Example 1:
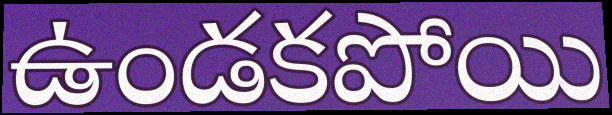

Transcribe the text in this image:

ఉండకపోయి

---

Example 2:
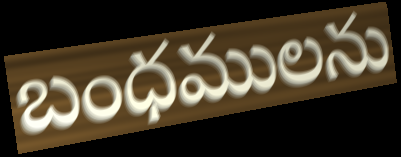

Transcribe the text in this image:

బంధములను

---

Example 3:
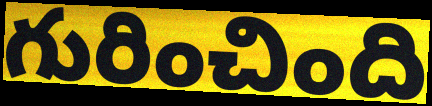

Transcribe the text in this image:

గురించింది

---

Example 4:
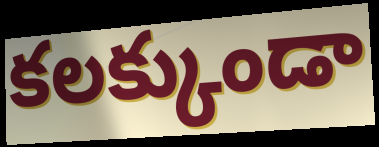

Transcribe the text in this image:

కలక్కుండా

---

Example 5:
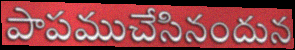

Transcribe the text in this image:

పాపముచేసినందున